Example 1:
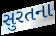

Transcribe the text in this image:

સુરતના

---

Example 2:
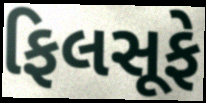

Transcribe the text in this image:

ફિલસૂફે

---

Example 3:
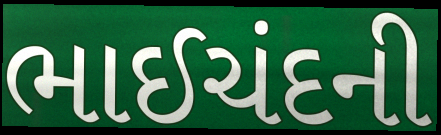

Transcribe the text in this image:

ભાઈચંદની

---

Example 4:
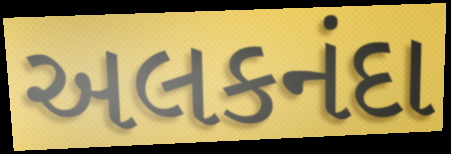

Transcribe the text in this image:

અલકનંદા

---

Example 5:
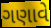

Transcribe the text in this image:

ગણાવે